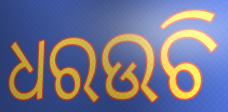
ଧରଉଚି